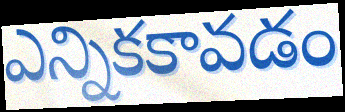
ఎన్నికకావడం